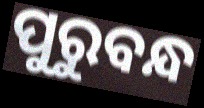
ପୁରୁବନ୍ଧ